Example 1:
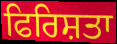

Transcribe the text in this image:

ਫਿਰਿਸ਼ਤਾ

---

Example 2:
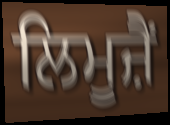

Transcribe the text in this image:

ਲਿਮੂਜ਼ੈਂ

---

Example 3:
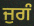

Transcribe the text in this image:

ਜੁਗੰ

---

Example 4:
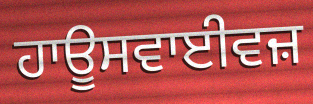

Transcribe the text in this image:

ਹਾਊਸਵਾਈਵਜ਼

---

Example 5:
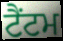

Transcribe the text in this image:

ਟੈਂਟਮ